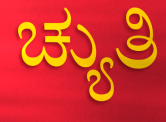
ಚ್ಯುತಿ